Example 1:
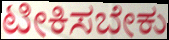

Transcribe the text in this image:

ಟೀಕಿಸಬೇಕು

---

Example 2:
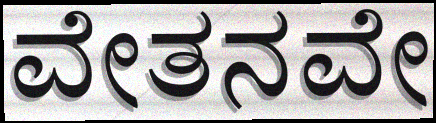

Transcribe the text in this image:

ವೇತನವೇ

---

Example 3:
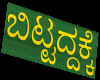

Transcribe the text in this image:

ಬಿಟ್ಟದ್ದಕ್ಕೆ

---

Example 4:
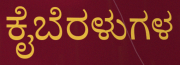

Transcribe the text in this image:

ಕೈಬೆರಳುಗಳ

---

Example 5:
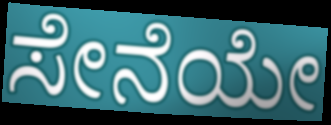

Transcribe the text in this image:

ಸೇನೆಯೇ